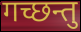
गच्छन्तु